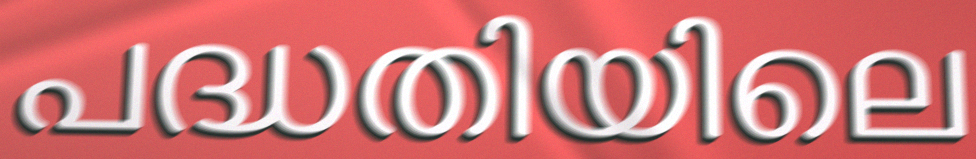
പദ്ധതിയിലെ